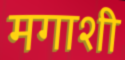
मगाशी